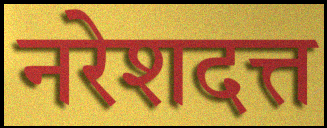
नरेशदत्त